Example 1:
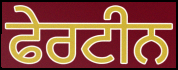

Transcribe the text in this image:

ਫੇਰਟੀਨ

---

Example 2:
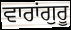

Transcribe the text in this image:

ਵਾਰਾਂਗੁਰੂ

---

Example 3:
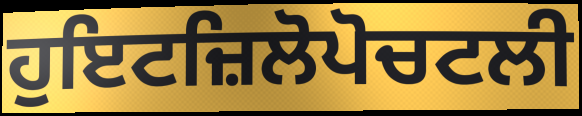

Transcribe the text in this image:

ਹੁਇਟਜ਼ਿਲੋਪੋਚਟਲੀ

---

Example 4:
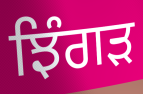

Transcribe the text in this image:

ਝਿੰਗੜ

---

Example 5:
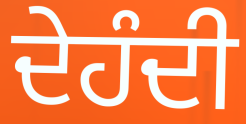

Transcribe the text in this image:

ਦੇਹੰਦੀ